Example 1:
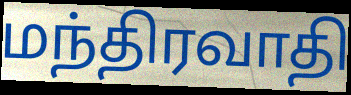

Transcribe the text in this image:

மந்திரவாதி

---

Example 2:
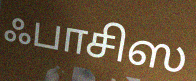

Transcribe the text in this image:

ஃபாசிஸ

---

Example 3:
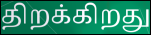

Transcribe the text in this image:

திறக்கிறது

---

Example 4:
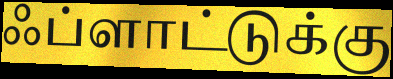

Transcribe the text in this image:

ஃப்ளாட்டுக்கு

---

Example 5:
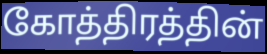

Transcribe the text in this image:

கோத்திரத்தின்